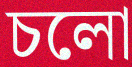
চলো